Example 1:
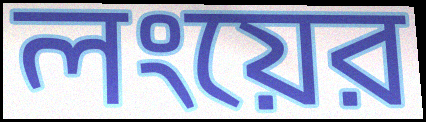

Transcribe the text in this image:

লংয়ের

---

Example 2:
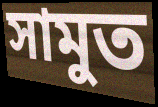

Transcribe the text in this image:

সামুত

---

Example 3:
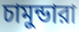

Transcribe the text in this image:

চামুন্ডারা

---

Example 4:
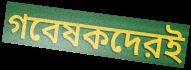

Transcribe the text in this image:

গবেষকদেরই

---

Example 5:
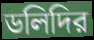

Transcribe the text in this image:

ডলিদির